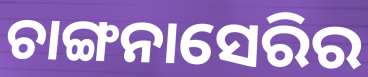
ଚାଙ୍ଗନାସେରିର